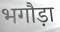
भगौड़ा